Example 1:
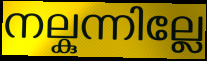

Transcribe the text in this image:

നല്കുന്നില്ലേ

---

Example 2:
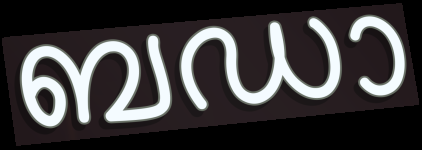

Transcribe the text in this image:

ബഡാ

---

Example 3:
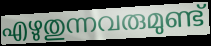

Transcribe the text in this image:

എഴുതുന്നവരുമുണ്ട്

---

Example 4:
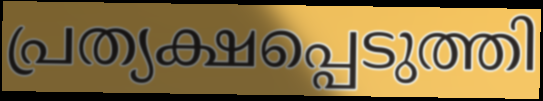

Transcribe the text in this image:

പ്രത്യക്ഷപ്പെടുത്തി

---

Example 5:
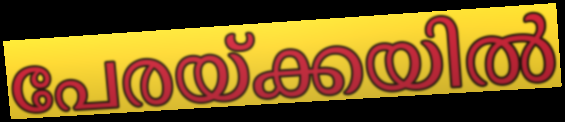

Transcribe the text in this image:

പേരയ്ക്കയിൽ